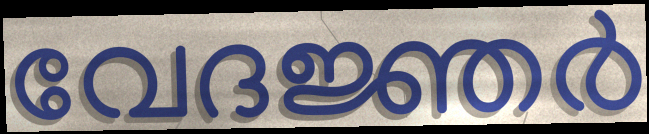
വേദജ്ഞർ